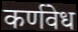
कर्णवेध